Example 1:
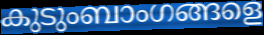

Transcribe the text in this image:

കുടുംബാംഗങ്ങളെ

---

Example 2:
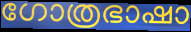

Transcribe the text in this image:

ഗോത്രഭാഷാ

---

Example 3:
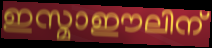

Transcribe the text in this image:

ഇസ്മാഈലിന്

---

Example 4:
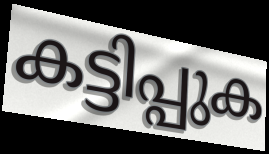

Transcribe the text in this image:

കട്ടിപ്പുക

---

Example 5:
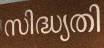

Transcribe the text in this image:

സിദ്ധ്യതി